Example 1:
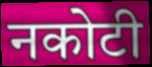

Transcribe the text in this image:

नकोटी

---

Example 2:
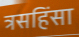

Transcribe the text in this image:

त्रसहिंसा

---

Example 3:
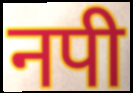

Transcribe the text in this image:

नपी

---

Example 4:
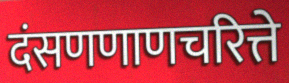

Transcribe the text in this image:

दंसणणाणचरित्ते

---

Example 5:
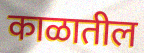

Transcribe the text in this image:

काळातील